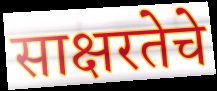
साक्षरतेचे